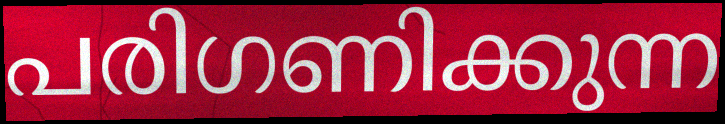
പരിഗണിക്കുന്ന